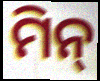
ମିନ୍